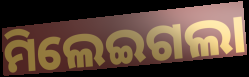
ମିଲେଇଗଲା